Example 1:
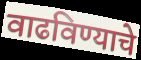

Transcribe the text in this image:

वाढविण्याचे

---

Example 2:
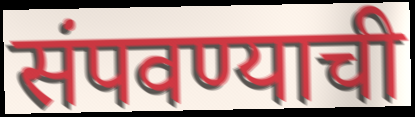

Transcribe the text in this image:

संपवण्याची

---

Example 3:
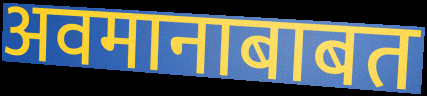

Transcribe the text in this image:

अवमानाबाबत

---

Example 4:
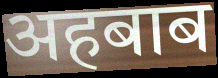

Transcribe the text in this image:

अहबाब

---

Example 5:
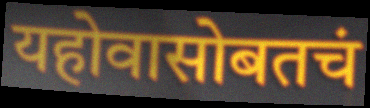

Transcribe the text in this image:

यहोवासोबतचं